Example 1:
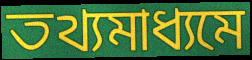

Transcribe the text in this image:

তথ্যমাধ্যমে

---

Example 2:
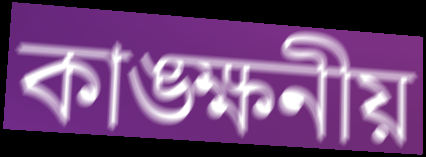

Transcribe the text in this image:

কাঙ্ক্ষনীয়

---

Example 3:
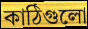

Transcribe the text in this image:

কাঠিগুলো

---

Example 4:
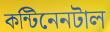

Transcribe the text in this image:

কন্টিনেনটাল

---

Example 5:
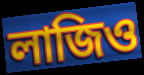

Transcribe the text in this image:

লাজিও